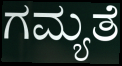
ಗಮ್ಯತೆ